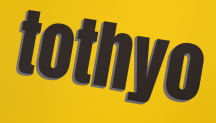
tothyo